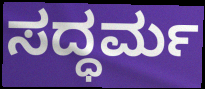
ಸದ್ಧರ್ಮ